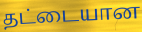
தட்டையான